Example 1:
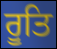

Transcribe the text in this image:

ਰੂਤਿ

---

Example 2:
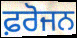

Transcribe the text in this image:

ਫ਼ਰੋਜਨ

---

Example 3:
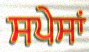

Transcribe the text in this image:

ਸਪੇਸਾਂ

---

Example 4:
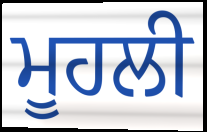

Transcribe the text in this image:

ਮੂਹਲੀ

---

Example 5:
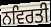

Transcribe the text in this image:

ਨਵਿਰਤੀ